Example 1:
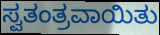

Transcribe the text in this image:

ಸ್ವತಂತ್ರವಾಯಿತು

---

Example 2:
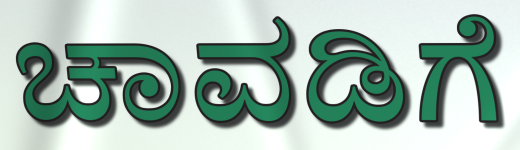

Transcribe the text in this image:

ಚಾವಡಿಗೆ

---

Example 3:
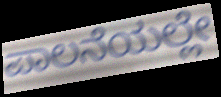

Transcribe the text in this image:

ಪಾಲನೆಯಲ್ಲೇ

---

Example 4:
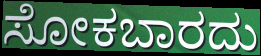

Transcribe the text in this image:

ಸೋಕಬಾರದು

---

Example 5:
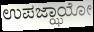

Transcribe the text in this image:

ಉಪಜ್ಝಾಯೋ